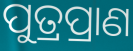
ପୁତ୍ରପ୍ରାଣ